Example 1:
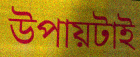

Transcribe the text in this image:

উপায়টাই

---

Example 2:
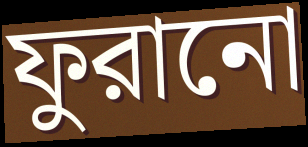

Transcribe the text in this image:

ফুরানো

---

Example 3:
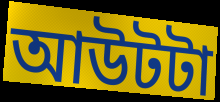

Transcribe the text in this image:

আউটটা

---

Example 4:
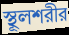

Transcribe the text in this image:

স্থূলশরীর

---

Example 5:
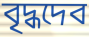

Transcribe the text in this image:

বৃদ্ধদেব